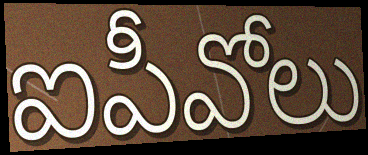
ఐపీవోలు